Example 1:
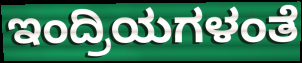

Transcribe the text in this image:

ಇಂದ್ರಿಯಗಳಂತೆ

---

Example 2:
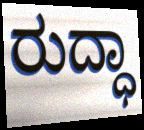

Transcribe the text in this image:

ರುದ್ಧಾ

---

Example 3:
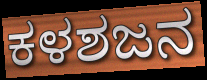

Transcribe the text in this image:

ಕಳಶಜನ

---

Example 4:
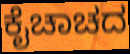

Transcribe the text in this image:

ಕೈಚಾಚದ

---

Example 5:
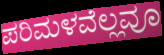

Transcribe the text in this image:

ಪರಿಮಳವೆಲ್ಲವೂ